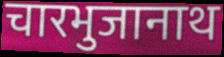
चारभुजानाथ